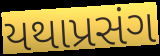
યથાપ્રસંગ